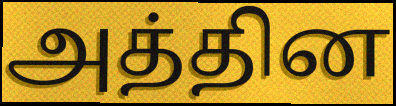
அத்தின